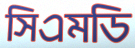
সিএমডি